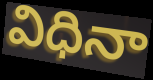
విధినా